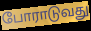
போராடுவது